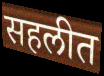
सहलीत